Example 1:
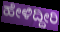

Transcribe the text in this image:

ಹೇಳಿದ್ದೀರಿ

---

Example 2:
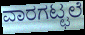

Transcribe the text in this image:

ವಾರಗಟ್ಟಲೆ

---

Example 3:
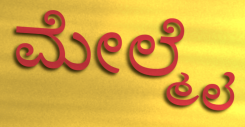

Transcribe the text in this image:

ಮೇಲ್ಮೈ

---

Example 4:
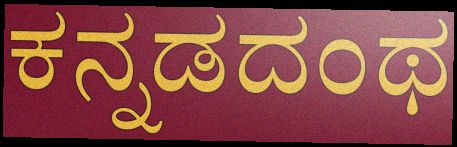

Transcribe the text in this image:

ಕನ್ನಡದಂಥ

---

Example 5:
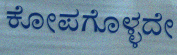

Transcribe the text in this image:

ಕೋಪಗೊಳ್ಳದೇ